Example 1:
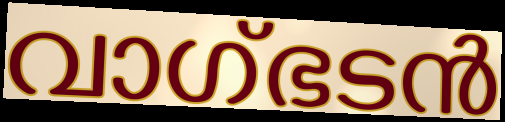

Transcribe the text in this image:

വാഗ്ഭടൻ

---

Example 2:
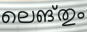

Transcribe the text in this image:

ലെങ്തും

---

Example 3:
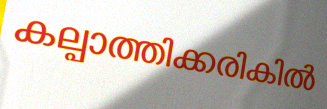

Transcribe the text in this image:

കല്പാത്തിക്കരികിൽ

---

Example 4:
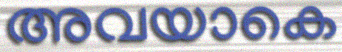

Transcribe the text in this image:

അവയാകെ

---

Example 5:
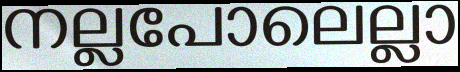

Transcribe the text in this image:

നല്ലപോലെല്ലാ